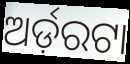
ଅର୍ଡ଼ରଟା